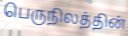
பெருநிலத்தின்